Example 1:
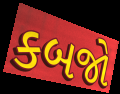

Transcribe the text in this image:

કબજો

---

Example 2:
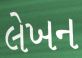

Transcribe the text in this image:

લેખન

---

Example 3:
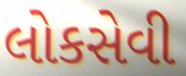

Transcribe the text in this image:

લોકસેવી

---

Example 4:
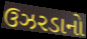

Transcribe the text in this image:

ઉઝરડાનો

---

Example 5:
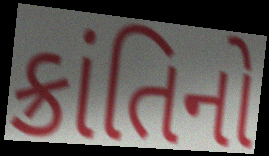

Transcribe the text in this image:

ક્રાંતિનો